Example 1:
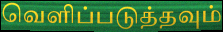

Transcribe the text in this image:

வெளிப்படுத்தவும்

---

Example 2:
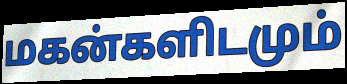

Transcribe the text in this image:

மகன்களிடமும்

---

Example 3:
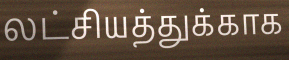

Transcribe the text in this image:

லட்சியத்துக்காக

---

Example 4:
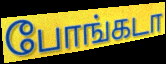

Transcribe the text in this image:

போங்கடா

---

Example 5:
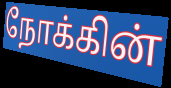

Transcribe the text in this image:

நோக்கின்